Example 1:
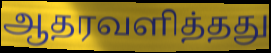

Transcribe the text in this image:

ஆதரவளித்தது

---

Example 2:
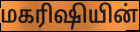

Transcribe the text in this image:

மகரிஷியின்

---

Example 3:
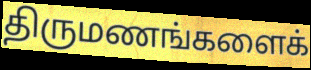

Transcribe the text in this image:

திருமணங்களைக்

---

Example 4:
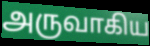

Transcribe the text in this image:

அருவாகிய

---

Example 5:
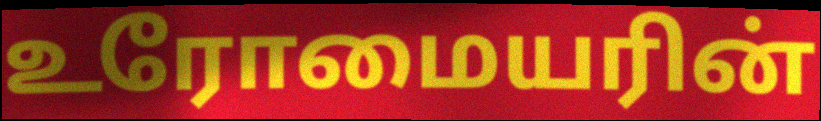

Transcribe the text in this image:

உரோமையரின்